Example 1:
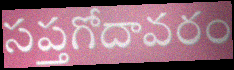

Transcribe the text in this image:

సప్తగోదావరం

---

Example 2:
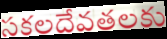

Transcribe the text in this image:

సకలదేవతలకు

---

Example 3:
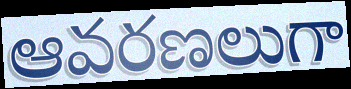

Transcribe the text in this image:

ఆవరణలుగా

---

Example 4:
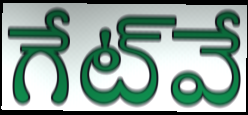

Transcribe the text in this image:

గేట్‌వే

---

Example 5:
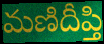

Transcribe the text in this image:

మణిదీప్తి